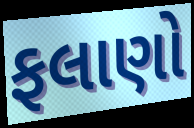
ફલાણો